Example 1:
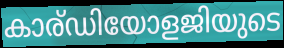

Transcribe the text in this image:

കാര്ഡിയോളജിയുടെ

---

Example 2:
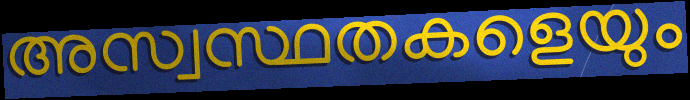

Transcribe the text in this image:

അസ്വസ്ഥതകളെയും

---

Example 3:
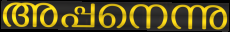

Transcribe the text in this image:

അപ്പനെന്നു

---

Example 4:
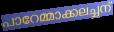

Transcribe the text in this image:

പാറേമ്മാക്കലച്ചന്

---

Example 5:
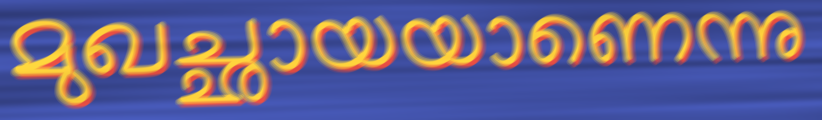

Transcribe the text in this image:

മുഖച്ഛായയാണെന്നു